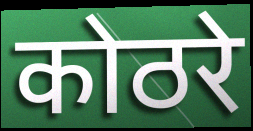
कोठरे